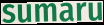
sumaru